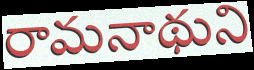
రామనాథుని